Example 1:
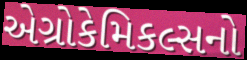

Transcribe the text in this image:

એગ્રોકેમિકલ્સનો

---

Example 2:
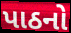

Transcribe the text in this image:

પાઠનો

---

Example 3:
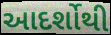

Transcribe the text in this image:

આદર્શોથી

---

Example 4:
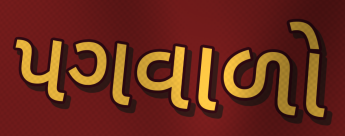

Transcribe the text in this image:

પગવાળો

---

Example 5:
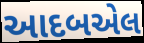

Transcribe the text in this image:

આદબએલ